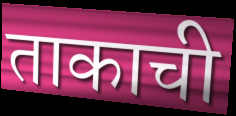
ताकाची